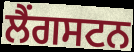
ਲੈਂਗਸਟਨ